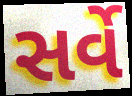
સર્વે